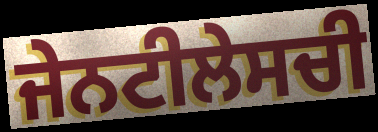
ਜੇਨਟੀਲੇਸਚੀ